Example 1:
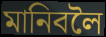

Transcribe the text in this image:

মানিবলৈ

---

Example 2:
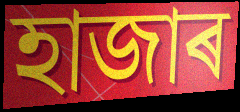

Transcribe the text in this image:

হাজাৰ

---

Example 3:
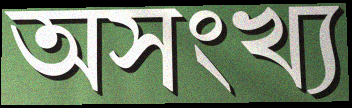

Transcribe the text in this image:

অসংখ্য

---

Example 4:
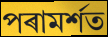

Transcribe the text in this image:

পৰামৰ্শত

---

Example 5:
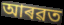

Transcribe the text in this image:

আৰৱত